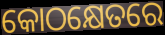
କୋଠକ୍ଷେତରେ